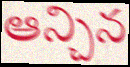
ఆన్చిన